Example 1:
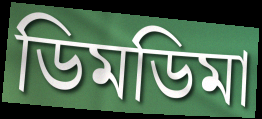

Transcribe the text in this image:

ডিমডিমা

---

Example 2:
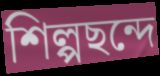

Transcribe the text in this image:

শিল্পছন্দে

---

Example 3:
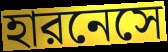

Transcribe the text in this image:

হারনেসে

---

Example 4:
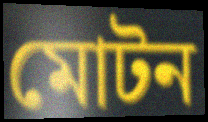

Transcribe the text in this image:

মোটন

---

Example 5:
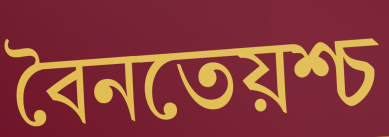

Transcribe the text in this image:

বৈনতেয়শ্চ